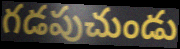
గడపుచుండు